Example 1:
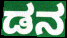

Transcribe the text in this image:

ಡನ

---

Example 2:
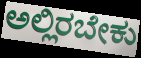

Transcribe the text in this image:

ಅಲ್ಲಿರಬೇಕು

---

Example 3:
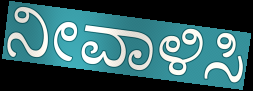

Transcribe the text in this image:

ನೀವಾಳಿಸಿ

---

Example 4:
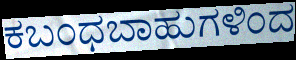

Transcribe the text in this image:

ಕಬಂಧಬಾಹುಗಳಿಂದ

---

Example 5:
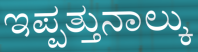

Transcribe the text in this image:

ಇಪ್ಪತ್ತುನಾಲ್ಕು